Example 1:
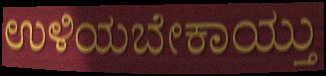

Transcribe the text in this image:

ಉಳಿಯಬೇಕಾಯ್ತು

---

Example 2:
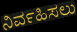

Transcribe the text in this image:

ನಿರ್ವಹಿಸಲು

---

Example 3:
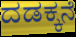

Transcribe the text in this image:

ದಡಕ್ಕನೆ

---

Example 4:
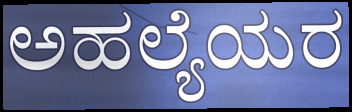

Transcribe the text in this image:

ಅಹಲ್ಯೆಯರ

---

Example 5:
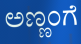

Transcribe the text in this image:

ಅಣ್ಣಂಗೆ